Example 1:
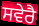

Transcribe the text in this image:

ਸਵੇਰੈ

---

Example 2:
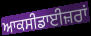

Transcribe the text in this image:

ਆਕਸੀਡਾਈਜ਼ਰਾਂ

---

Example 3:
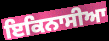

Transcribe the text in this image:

ਇਕਿਨਾਸੀਆ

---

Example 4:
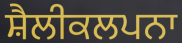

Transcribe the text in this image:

ਸ਼ੈਲੀਕਲਪਨਾ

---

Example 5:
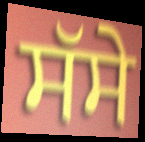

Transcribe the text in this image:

ਸੱਸੇ